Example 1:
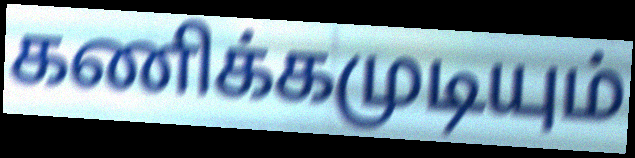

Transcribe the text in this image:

கணிக்கமுடியும்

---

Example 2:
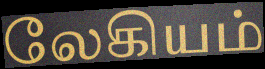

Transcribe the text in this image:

லேகியம்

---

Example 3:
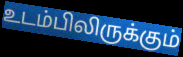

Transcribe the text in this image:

உடம்பிலிருக்கும்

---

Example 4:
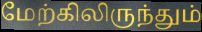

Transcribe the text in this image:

மேற்கிலிருந்தும்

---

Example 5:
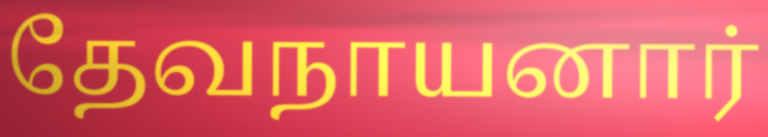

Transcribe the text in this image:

தேவநாயனார்